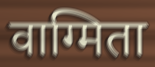
वाग्मिता